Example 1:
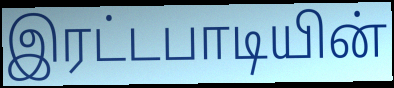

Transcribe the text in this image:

இரட்டபாடியின்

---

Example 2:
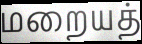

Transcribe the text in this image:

மறையத்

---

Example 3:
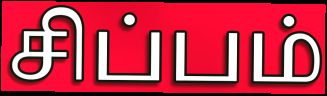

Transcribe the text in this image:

சிப்பம்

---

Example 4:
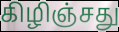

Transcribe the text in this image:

கிழிஞ்சது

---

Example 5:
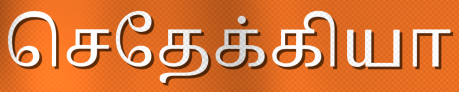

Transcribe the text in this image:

செதேக்கியா